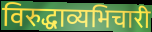
विरुद्धाव्यभिचारी